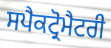
ਸਪੈਕਟ੍ਰੋਮੈਟਰੀ